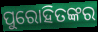
ପୁରୋହିତଙ୍କର